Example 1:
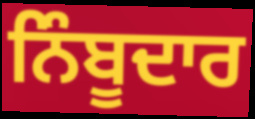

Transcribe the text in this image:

ਨਿੰਬੂਦਾਰ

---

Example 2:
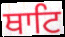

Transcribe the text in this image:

ਥਾਟਿ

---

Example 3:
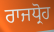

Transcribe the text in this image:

ਰਾਜਧ੍ਰੋਹ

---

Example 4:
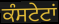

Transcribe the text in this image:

ਕੰਸਟੇਟਾਂ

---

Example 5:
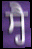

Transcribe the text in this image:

ਸ੍ਹੈ